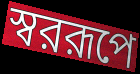
স্বররূপে